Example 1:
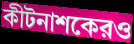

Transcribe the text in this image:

কীটনাশকেরও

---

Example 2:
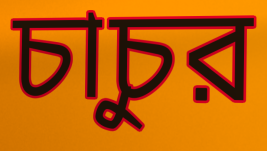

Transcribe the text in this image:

চাচুর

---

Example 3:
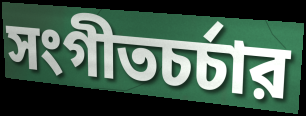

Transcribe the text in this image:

সংগীতচর্চার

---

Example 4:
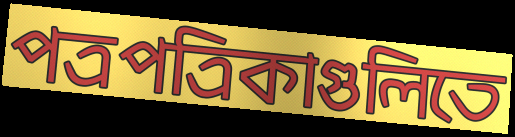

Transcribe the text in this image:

পত্রপত্রিকাগুলিতে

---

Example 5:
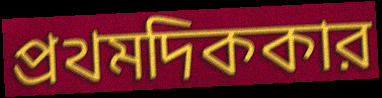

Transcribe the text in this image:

প্রথমদিককার